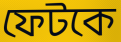
ফেটকে